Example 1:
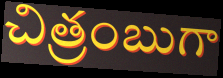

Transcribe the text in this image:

చిత్రంబుగా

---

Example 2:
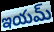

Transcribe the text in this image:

ఇయమ్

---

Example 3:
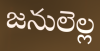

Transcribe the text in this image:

జనులెల్ల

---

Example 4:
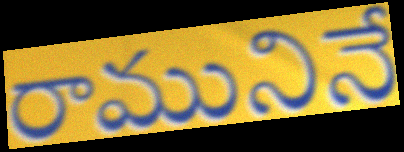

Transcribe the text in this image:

రామునినే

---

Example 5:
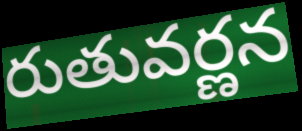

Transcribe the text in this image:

రుతువర్ణన